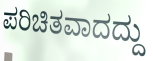
ಪರಿಚಿತವಾದದ್ದು